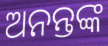
ଅନନ୍ତଙ୍କ